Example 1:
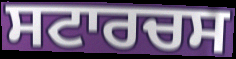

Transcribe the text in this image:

ਸਟਾਰਚਸ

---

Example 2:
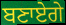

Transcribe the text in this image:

ਬਣਾਏਗੇ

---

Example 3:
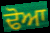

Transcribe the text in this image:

ਢੋਆ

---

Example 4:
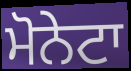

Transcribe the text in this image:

ਮੋਨੇਟਾ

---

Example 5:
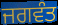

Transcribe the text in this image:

ਜਗਵੰਤ